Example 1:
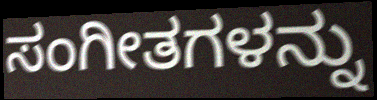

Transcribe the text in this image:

ಸಂಗೀತಗಳನ್ನು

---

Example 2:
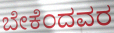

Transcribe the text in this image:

ಬೇಕೆಂದವರ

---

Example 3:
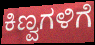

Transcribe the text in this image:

ಕಿಣ್ವಗಳಿಗೆ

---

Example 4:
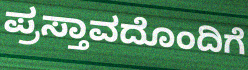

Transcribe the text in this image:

ಪ್ರಸ್ತಾವದೊಂದಿಗೆ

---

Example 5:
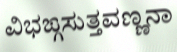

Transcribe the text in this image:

ವಿಭಙ್ಗಸುತ್ತವಣ್ಣನಾ